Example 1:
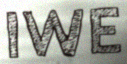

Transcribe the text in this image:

IWE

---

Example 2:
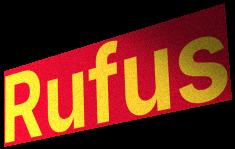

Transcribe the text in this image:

Rufus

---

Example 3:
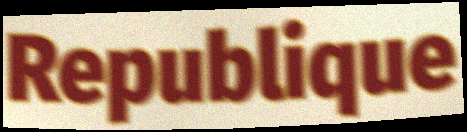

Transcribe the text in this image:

Republique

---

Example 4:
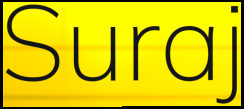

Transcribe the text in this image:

Suraj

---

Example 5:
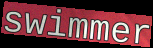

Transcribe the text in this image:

swimmer